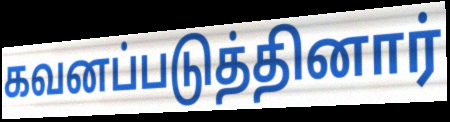
கவனப்படுத்தினார்